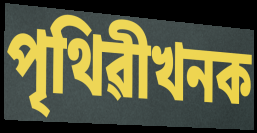
পৃথিৱীখনক